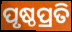
ପୃଷ୍ଠପ୍ରତି